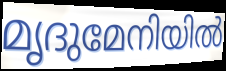
മൃദുമേനിയിൽ